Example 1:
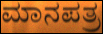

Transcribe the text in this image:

ಮಾನಪತ್ರ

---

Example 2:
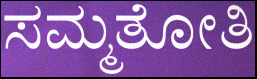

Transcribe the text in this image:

ಸಮ್ಮತೋತಿ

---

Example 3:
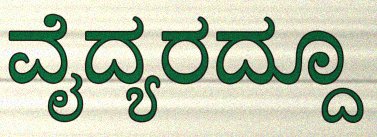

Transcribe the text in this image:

ವೈದ್ಯರದ್ದೂ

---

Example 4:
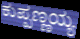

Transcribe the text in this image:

ಕುಪ್ಪಣ್ಣಯ್ಯ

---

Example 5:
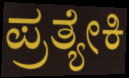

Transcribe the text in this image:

ಪ್ರತ್ಯೇಕಿ